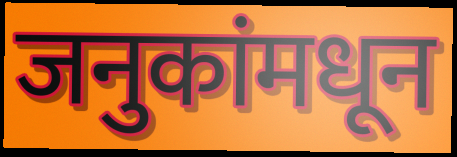
जनुकांमधून